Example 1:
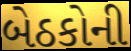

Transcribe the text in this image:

બેઠકોની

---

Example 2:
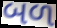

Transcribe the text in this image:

બળ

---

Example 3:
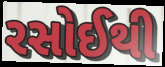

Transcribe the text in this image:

રસોઈથી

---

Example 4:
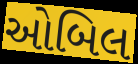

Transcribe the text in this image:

ઓબિલ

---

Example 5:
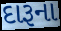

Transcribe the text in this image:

દારૂના